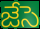
జేసె